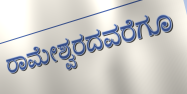
ರಾಮೇಶ್ವರದವರೆಗೂ